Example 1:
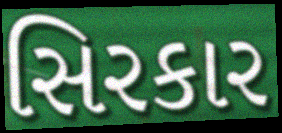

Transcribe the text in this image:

સિરકાર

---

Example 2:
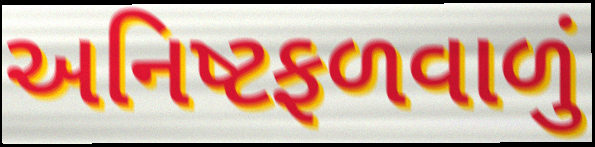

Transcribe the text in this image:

અનિષ્ટફળવાળું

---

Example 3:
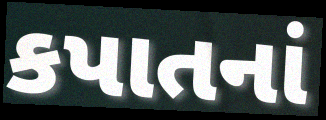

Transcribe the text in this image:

કપાતનાં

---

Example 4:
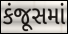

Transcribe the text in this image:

કંજૂસમાં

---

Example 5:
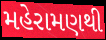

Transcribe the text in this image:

મહેરામણથી